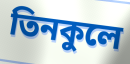
তিনকুলে